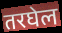
तरघेल